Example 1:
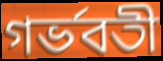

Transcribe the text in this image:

গর্ভবতী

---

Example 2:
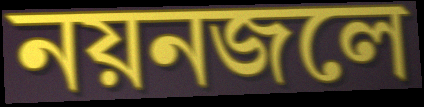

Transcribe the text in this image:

নয়নজলে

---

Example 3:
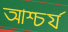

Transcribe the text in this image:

আশ্চর্য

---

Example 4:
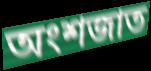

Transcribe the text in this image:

অংশজাত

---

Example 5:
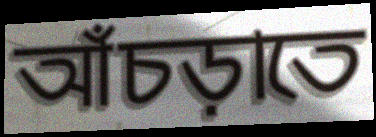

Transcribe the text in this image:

আঁচড়াতে